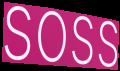
soss